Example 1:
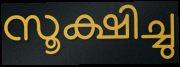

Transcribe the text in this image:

സൂക്ഷിച്ചു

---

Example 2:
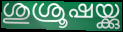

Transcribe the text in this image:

ശുശ്രൂഷയ്ക്കു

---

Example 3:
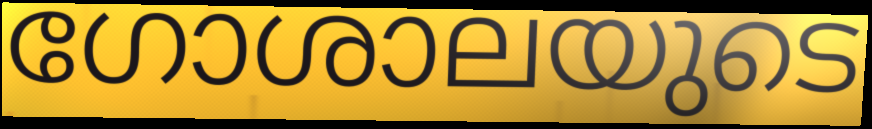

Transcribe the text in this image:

ഗോശാലയുടെ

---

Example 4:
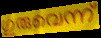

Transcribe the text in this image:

ഗുരുവെന്ന്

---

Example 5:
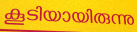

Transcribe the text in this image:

കൂടിയായിരുന്നു